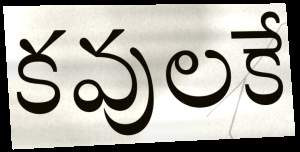
కవులకే